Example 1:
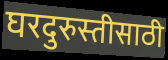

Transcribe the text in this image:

घरदुरुस्तीसाठी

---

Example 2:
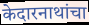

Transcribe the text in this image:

केदारनाथांचा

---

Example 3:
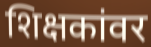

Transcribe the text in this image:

शिक्षकांवर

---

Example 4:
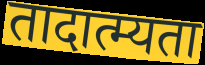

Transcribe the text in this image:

तादात्म्यता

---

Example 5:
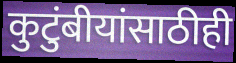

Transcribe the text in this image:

कुटुंबीयांसाठीही